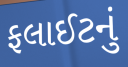
ફલાઈટનું